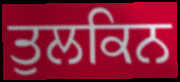
ਤੁਲਕਿਨ